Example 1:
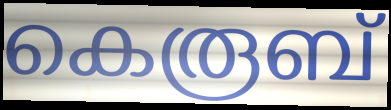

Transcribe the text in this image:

കെരൂബ്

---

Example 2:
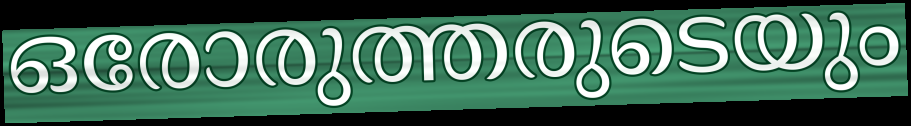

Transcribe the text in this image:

ഒരോരുത്തരുടെയും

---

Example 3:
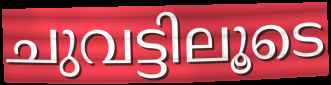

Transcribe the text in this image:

ചുവട്ടിലൂടെ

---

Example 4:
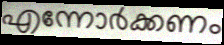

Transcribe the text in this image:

എന്നോർക്കണം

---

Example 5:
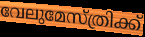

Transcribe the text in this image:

വേലുമേസ്ത്രിക്ക്